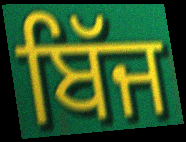
ਬਿੱਜ